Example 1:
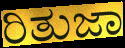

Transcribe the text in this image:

ರಿತುಜಾ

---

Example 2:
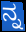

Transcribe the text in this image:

ನ್ನ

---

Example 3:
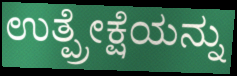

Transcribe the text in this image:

ಉತ್ಪ್ರೇಕ್ಷೆಯನ್ನು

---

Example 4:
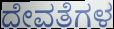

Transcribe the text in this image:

ದೇವತೆಗಳ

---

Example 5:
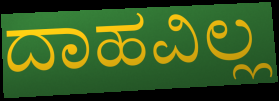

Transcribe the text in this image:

ದಾಹವಿಲ್ಲ